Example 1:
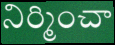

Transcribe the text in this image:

నిర్మించా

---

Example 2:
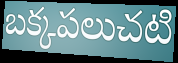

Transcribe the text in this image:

బక్కపలుచటి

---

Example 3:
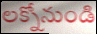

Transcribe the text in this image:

లక్నోనుండి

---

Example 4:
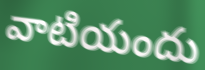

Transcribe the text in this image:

వాటియందు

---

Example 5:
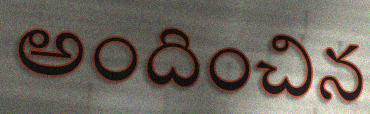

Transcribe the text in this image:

అందించిన